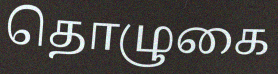
தொழுகை